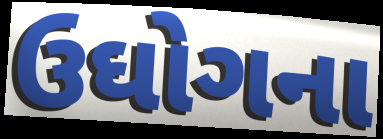
ઉઘોગના